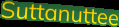
Suttanuttee